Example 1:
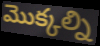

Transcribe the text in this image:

మొక్కల్ని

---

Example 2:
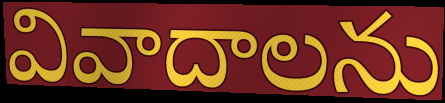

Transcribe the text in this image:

వివాదాలను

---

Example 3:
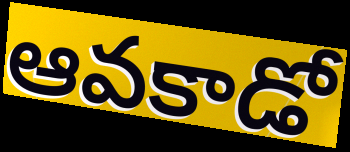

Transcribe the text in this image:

ఆవకాడో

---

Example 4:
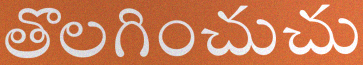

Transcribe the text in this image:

తొలగించుచు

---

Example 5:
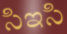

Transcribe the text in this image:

సిఇసి